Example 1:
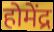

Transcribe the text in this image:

होमेंद्र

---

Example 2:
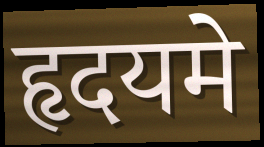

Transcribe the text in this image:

हृदयमे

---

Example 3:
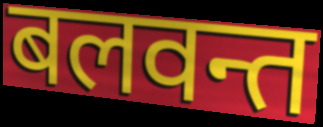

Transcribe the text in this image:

बलवन्त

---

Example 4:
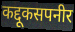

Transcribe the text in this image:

कद्दूकसपनीर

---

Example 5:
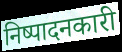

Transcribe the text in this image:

निष्पादनकारी